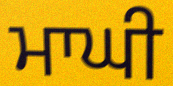
ਮਾਘੀ